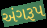
અંગરૂપ